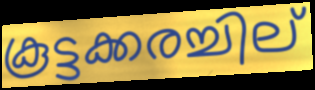
കൂട്ടക്കരച്ചില്